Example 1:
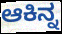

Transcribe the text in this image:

ಆಕಿನ್ನ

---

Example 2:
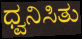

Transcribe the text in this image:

ಧ್ವನಿಸಿತು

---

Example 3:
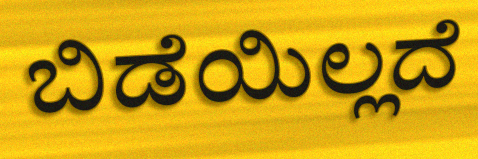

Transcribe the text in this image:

ಬಿಡೆಯಿಲ್ಲದೆ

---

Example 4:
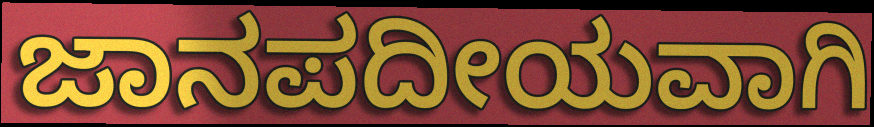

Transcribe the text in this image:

ಜಾನಪದೀಯವಾಗಿ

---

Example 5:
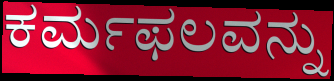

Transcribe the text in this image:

ಕರ್ಮಫಲವನ್ನು